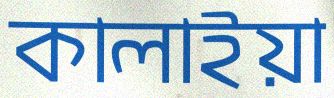
কালাইয়া